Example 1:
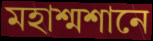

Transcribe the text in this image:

মহাশ্মশানে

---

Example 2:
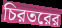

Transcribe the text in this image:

চিরতরের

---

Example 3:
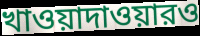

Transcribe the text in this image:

খাওয়াদাওয়ারও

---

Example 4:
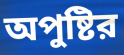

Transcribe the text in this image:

অপুষ্টির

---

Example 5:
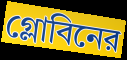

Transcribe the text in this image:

গ্লোবিনের